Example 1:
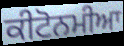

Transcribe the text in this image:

ਕੀਟੋਨਮੀਆ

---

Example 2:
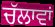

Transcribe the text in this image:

ਚੱਲਾਵਾਂ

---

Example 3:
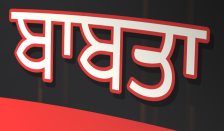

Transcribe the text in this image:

ਬਾਬਤਾ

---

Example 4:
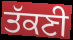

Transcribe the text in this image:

ਤੱਕਣੀ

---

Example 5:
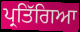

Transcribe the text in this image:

ਪ੍ਰਤਿੱਗਿਆ